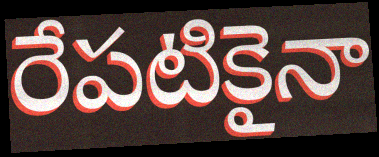
రేపటికైనా